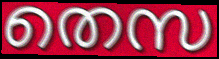
തെസ